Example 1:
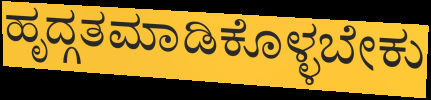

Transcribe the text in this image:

ಹೃದ್ಗತಮಾಡಿಕೊಳ್ಳಬೇಕು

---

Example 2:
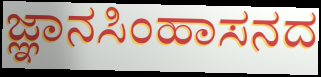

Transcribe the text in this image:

ಜ್ಞಾನಸಿಂಹಾಸನದ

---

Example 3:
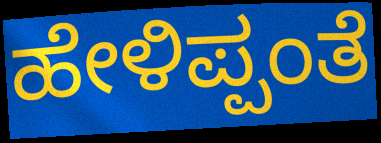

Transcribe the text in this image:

ಹೇಳಿಪ್ಪಂತೆ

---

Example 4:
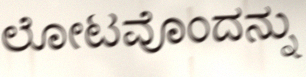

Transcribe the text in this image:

ಲೋಟವೊಂದನ್ನು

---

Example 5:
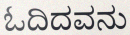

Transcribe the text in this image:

ಓದಿದವನು